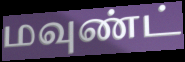
மவுண்ட்